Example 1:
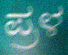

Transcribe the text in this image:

ಪ್ರಳ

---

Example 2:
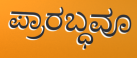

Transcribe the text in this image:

ಪ್ರಾರಬ್ಧವೂ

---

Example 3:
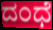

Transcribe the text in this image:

ದಂಧೆ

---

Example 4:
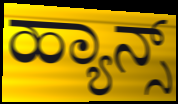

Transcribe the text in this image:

ಹ್ಯಾನ್ಸ್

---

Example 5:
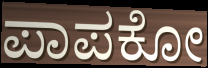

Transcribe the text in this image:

ಪಾಪಕೋ